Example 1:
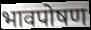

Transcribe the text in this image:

भावपोषण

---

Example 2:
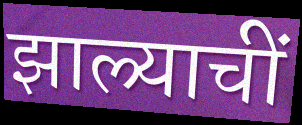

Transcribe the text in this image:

झाल्याचीं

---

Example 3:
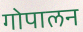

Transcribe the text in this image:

गोपालन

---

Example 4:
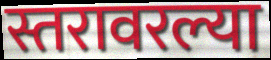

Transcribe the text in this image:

स्तरावरल्या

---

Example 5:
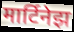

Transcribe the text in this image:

मार्टिनेझ